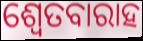
ଶ୍ଵେତବାରାହ